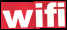
wifi